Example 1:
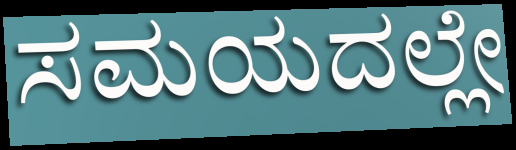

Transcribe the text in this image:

ಸಮಯದಲ್ಲೇ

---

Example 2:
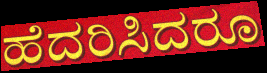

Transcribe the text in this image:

ಹೆದರಿಸಿದರೂ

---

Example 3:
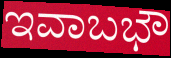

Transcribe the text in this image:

ಇವಾಬಭೌ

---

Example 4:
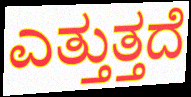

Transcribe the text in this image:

ಎತ್ತುತ್ತದೆ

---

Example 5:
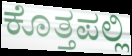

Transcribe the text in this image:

ಕೊತ್ತಪಲ್ಲಿ